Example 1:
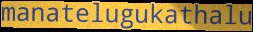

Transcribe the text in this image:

manatelugukathalu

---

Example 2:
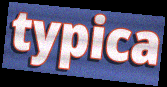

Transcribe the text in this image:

typica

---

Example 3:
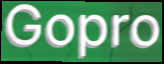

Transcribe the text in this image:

Gopro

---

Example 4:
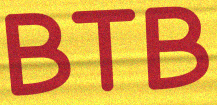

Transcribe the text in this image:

BTB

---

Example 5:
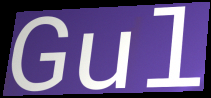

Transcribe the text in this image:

Gul